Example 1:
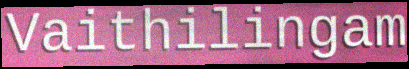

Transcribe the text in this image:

Vaithilingam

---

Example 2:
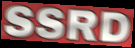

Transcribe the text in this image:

SSRD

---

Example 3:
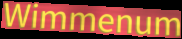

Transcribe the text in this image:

Wimmenum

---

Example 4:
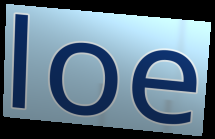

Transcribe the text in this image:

Ioe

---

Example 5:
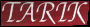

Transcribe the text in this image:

TARIK